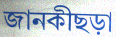
জানকীছড়া